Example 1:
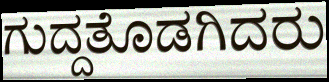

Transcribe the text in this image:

ಗುದ್ದತೊಡಗಿದರು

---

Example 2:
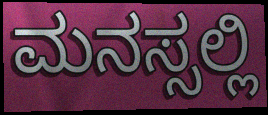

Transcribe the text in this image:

ಮನಸ್ಸಲ್ಲಿ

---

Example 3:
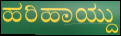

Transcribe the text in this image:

ಹರಿಹಾಯ್ದು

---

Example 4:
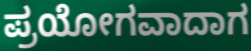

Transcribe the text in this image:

ಪ್ರಯೋಗವಾದಾಗ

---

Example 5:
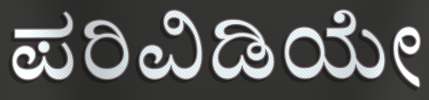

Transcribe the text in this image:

ಪರಿವಿಡಿಯೇ